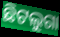
ଛିଟଲୁଗା